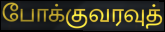
போக்குவரவுத்